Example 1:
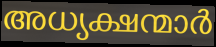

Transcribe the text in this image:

അധ്യക്ഷന്മാർ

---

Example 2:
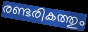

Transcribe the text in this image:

രണ്ടരികത്തും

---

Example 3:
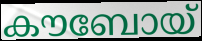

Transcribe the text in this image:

കൗബോയ്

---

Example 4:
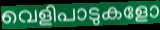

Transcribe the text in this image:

വെളിപാടുകളോ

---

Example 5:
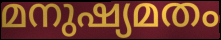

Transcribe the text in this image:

മനുഷ്യമതം